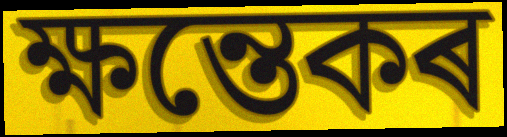
ক্ষন্তেকৰ